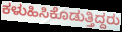
ಕಳುಹಿಸಿಕೊಡುತ್ತಿದ್ದರು